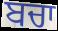
ਬਚਾ